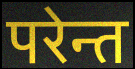
परेन्त